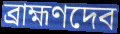
ব্রাহ্মণদেব